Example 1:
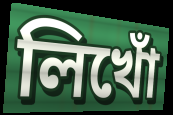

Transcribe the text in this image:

লিখোঁ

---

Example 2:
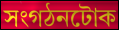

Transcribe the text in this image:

সংগঠনটোক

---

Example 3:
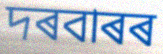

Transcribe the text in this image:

দৰবাৰৰ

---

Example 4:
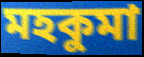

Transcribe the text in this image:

মহকুমা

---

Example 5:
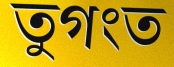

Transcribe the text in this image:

তুগংত